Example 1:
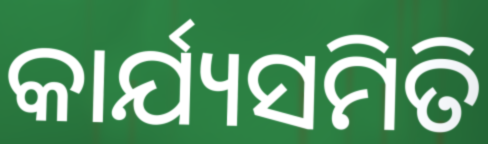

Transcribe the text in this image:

କାର୍ଯ୍ୟସମିତି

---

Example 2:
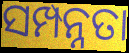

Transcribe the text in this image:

ସମ୍ପନ୍ନତା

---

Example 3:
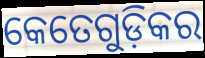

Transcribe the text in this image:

କେତେଗୁଡ଼ିକର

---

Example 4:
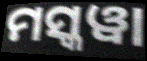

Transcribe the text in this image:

ମସ୍କୱା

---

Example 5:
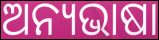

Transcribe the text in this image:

ଅନ୍ୟଭାଷା